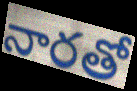
నారతో